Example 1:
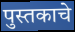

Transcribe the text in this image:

पुस्तकाचे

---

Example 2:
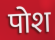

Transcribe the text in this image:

पोश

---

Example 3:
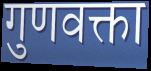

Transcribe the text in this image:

गुणवक्ता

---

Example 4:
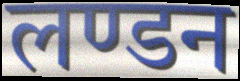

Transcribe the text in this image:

लण्डन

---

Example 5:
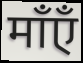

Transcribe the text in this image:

माँएँ